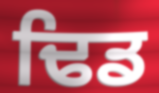
ਢਿਡ